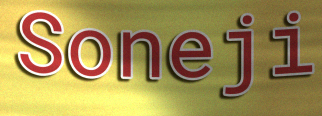
Soneji